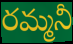
రమ్మనీ